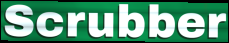
Scrubber